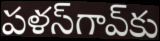
పళస్‌గావ్‌కు